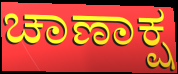
ಚಾಣಾಕ್ಷ